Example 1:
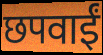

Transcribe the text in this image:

छपवाईं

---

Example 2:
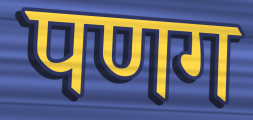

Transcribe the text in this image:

पणग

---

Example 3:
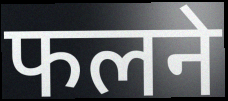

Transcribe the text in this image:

फलने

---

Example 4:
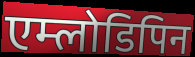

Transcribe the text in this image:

एम्लोडिपिन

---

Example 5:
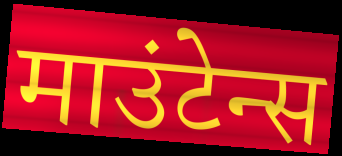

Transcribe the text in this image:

माउंटेन्स